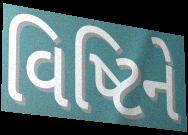
વિષ્ટિને